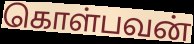
கொள்பவன்